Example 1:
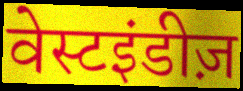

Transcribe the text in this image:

वेस्टइंडीज़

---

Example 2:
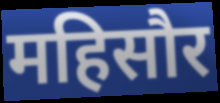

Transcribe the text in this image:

महिसौर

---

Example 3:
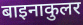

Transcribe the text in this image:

बाइनाकुलर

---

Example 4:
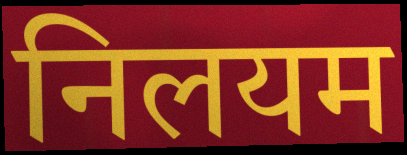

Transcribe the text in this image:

निलयम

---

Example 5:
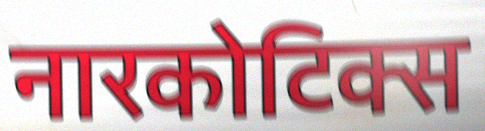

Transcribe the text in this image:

नारकोटिक्स